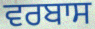
ਵਰਬਾਸ